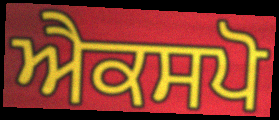
ਐਕਸਪੋ